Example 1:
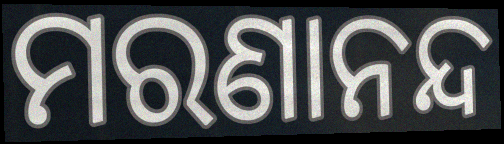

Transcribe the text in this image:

ମରଣାନନ୍ଦ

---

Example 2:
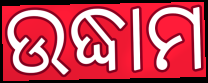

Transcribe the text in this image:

ଉଦ୍ଧାମ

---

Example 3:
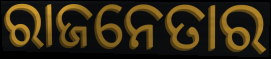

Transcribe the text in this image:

ରାଜନେତାର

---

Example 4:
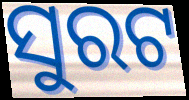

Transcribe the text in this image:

ସୁରଟ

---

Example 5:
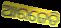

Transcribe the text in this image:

ଆରଜେଡି